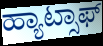
ಹ್ಯಾಟ್ಸಾಫ್